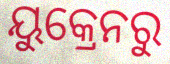
ୟୁକ୍ରେନରୁ